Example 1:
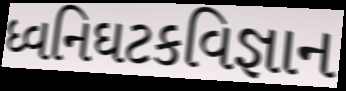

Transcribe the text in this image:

ધ્વનિઘટકવિજ્ઞાન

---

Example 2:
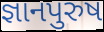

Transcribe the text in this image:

જ્ઞાનપુરુષ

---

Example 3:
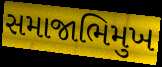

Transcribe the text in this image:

સમાજાભિમુખ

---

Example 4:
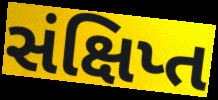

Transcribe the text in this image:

સંક્ષિપ્ત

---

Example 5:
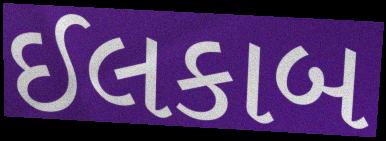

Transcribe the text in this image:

ઈલકાબ